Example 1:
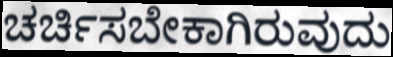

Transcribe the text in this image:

ಚರ್ಚಿಸಬೇಕಾಗಿರುವುದು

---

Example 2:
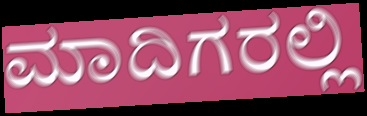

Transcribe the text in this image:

ಮಾದಿಗರಲ್ಲಿ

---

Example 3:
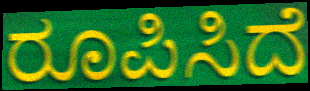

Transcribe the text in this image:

ರೂಪಿಸಿದೆ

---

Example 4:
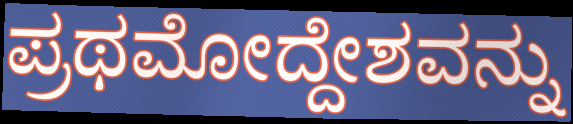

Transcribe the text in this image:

ಪ್ರಥಮೋದ್ದೇಶವನ್ನು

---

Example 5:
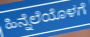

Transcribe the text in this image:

ಹಿನ್ನೆಲೆಯೊಳಗೆ